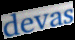
devas